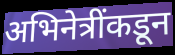
अभिनेत्रींकडून